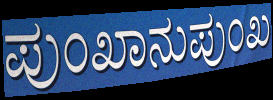
ಪುಂಖಾನುಪುಂಖ